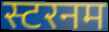
स्टरनम